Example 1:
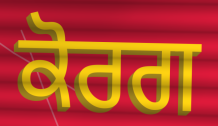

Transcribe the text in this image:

ਕੋਰਗ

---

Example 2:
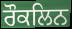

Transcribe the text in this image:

ਰੌਕਲਿਨ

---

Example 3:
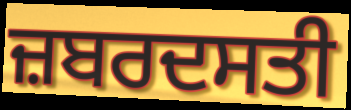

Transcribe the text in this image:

ਜ਼ਬਰਦਸਤੀ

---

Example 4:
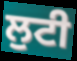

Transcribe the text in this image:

ਲੁਟੀ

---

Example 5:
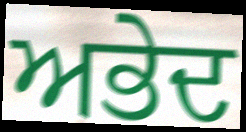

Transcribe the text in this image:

ਅਭੇਦ